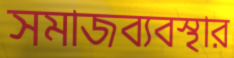
সমাজব্যবস্থার